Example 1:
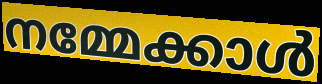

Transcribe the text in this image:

നമ്മേക്കാൾ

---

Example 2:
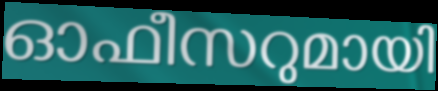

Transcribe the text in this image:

ഓഫീസറുമായി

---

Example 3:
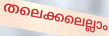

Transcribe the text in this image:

തലെക്കലെല്ലാം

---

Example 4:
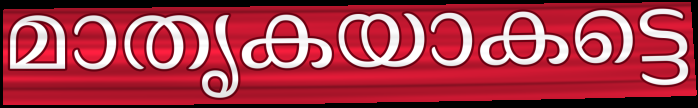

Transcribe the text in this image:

മാതൃകയാകട്ടെ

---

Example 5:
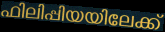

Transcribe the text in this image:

ഫിലിപ്പിയയിലേക്ക്